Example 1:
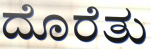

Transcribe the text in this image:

ದೊರೆತು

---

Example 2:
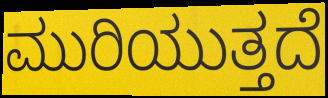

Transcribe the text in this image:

ಮುರಿಯುತ್ತದೆ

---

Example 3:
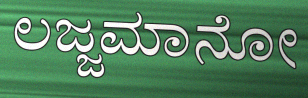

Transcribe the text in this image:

ಲಜ್ಜಮಾನೋ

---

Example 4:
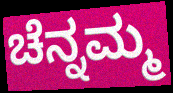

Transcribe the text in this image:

ಚೆನ್ನಮ್ಮ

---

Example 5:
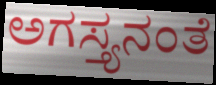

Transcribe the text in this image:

ಅಗಸ್ತ್ಯನಂತೆ